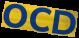
OCD